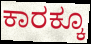
ಕಾರಕ್ಕೂ